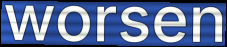
worsen